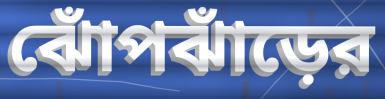
ঝোঁপঝাঁড়ের